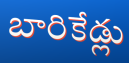
బారికేడ్లు